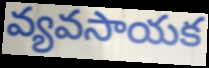
వ్యవసాయక